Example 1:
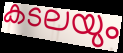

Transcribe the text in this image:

കടലയും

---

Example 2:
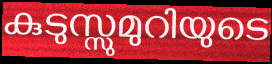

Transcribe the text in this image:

കുടുസ്സുമുറിയുടെ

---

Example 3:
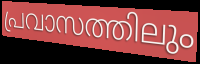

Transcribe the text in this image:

പ്രവാസത്തിലും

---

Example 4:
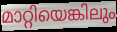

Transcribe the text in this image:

മാറ്റിയെങ്കിലും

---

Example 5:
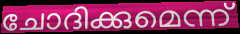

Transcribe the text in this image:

ചോദിക്കുമെന്ന്